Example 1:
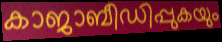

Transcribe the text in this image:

കാജാബീഡിപ്പുകയും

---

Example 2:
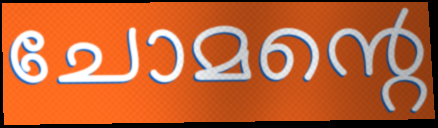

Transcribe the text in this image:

ചോമന്റെ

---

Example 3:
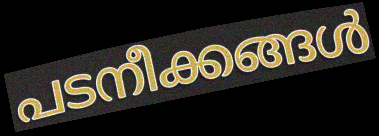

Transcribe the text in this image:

പടനീക്കങ്ങൾ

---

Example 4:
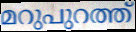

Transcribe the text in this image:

മറുപുറത്ത്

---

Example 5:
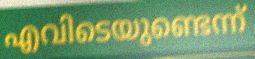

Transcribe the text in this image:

എവിടെയുണ്ടെന്ന്